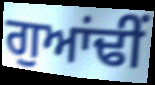
ਗੁਆਂਢੀਂ